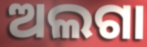
ଅଲଗା